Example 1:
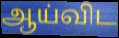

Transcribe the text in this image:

ஆய்விட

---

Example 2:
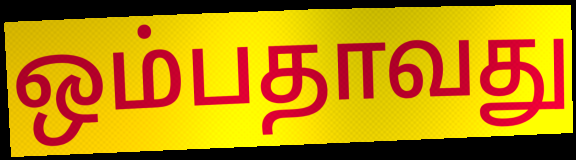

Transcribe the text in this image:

ஒம்பதாவது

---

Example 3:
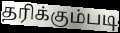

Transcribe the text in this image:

தரிக்கும்படி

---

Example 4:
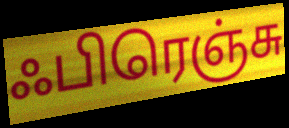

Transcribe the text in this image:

ஃபிரெஞ்சு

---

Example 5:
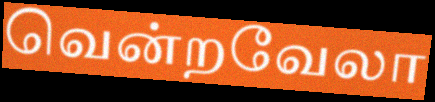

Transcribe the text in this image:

வென்றவேலா